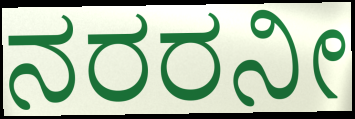
ನರರನೀ